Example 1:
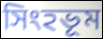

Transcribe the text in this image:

সিংহভূম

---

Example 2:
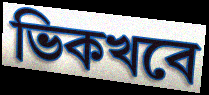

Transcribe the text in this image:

ভিকখবে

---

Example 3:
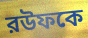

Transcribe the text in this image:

রউফকে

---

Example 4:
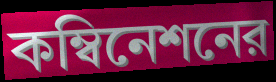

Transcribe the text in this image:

কম্বিনেশনের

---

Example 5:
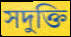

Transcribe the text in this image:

সদুক্তি